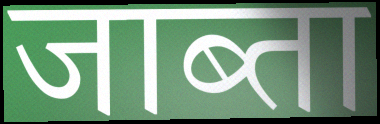
जाब्ता